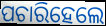
ପଚାରିହେଲେ